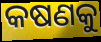
କଷଣକୁ